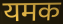
यमक